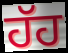
ਹੱਹ